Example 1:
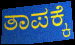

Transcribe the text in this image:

ತಾಪಕ್ಕೆ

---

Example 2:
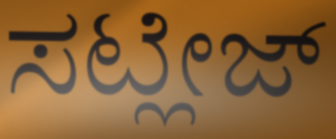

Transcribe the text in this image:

ಸಟ್ಲೇಜ್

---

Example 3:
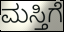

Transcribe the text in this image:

ಮಸ್ತಿಗೆ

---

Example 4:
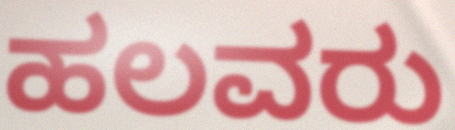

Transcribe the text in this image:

ಹಲವರು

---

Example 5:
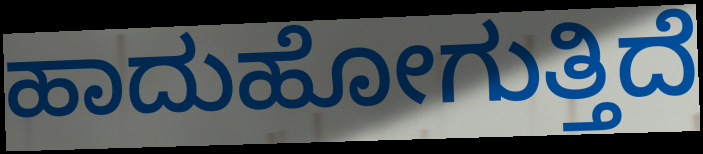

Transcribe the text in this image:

ಹಾದುಹೋಗುತ್ತಿದೆ